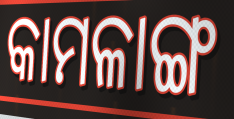
କାମଳାଙ୍ଗ